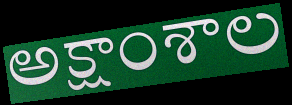
అక్షాంశాల